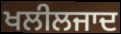
ਖਲੀਲਜਾਦ